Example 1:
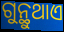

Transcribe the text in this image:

ଗୁନ୍ଥୁଥାଏ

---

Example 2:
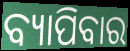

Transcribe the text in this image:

ବ୍ୟାପିବାର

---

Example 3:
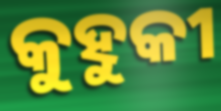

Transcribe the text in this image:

କୁହୁକୀ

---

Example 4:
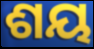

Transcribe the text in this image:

ଶୟ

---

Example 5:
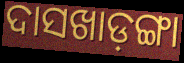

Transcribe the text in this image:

ଦାସଖାଡ଼ଙ୍ଗା